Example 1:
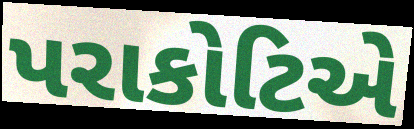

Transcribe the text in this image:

પરાકોટિએ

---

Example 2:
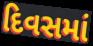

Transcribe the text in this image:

દિવસમાં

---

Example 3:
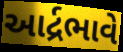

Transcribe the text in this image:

આર્દ્રભાવે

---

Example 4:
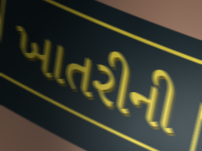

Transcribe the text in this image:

ખાતરીની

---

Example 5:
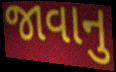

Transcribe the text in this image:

જાવાનુ